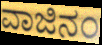
ವಾಜಿನಂ